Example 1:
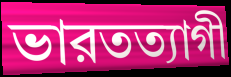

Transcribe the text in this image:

ভারতত্যাগী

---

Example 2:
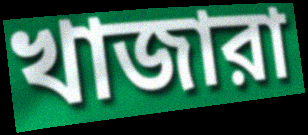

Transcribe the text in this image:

খাজারা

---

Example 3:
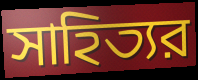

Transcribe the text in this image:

সাহিত্যর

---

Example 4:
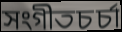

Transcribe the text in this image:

সংগীতচর্চা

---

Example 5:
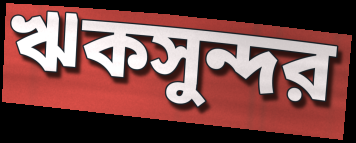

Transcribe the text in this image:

ঋকসুন্দর